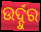
ଉର୍ଦ୍ଦୁର